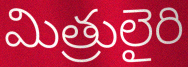
మిత్రులైరి